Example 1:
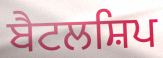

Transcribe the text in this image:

ਬੈਟਲਸ਼ਿਪ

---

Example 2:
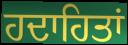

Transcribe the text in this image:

ਹਦਾਹਿਤਾਂ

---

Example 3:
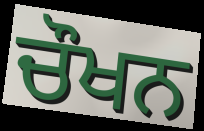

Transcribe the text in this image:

ਚੌਖਨ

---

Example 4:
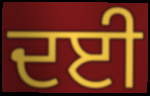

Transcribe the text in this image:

ਦਈ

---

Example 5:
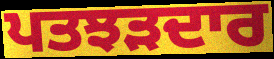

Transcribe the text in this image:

ਪਤਝੜਦਾਰ